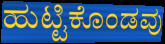
ಹುಟ್ಟಿಕೊಂಡವು